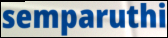
semparuthi